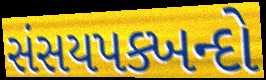
સંસયપક્ખન્દો